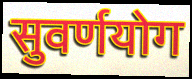
सुवर्णयोग